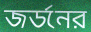
জর্ডনের